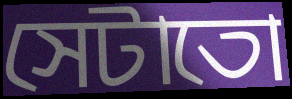
সেটাতো